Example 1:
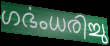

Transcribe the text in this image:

ഗൎഭംധരിച്ചു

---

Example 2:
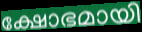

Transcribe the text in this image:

ക്ഷോഭമായി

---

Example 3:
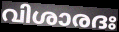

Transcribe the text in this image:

വിശാരദഃ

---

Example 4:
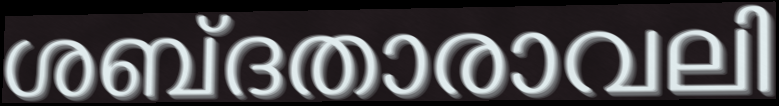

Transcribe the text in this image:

ശബ്‌ദതാരാവലി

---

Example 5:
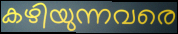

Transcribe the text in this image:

കഴിയുന്നവരെ